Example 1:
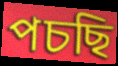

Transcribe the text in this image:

পচছি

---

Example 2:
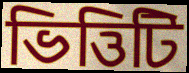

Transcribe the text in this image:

ভিত্তিটি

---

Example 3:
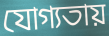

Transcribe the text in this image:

যোগ্যতায়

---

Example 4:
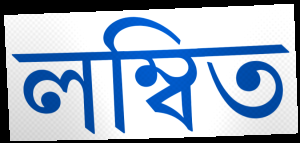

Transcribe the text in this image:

লম্বিত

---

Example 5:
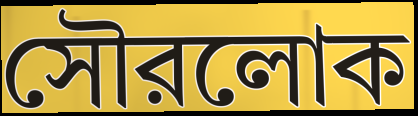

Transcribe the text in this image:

সৌরলোক